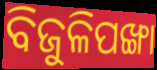
ବିଜୁଳିପଙ୍ଖା